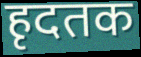
हृदतक